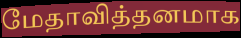
மேதாவித்தனமாக